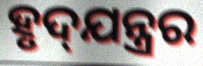
ହୃଦ୍‍ଯନ୍ତ୍ରର